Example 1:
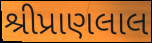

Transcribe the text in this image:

શ્રીપ્રાણલાલ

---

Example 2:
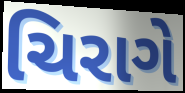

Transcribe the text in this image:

ચિરાગે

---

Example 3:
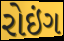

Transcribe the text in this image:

રોઇંગ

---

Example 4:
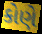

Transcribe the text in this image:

કોણે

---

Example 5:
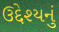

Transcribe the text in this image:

ઉદ્દેશ્યનું